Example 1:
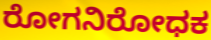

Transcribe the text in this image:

ರೋಗನಿರೋಧಕ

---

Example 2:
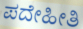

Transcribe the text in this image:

ಪದೇಹೀತಿ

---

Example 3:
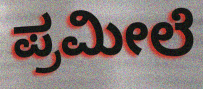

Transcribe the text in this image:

ಪ್ರಮೀಲೆ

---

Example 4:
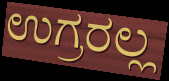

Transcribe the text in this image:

ಉಗ್ರರಲ್ಲ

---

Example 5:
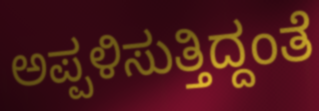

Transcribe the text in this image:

ಅಪ್ಪಳಿಸುತ್ತಿದ್ದಂತೆ